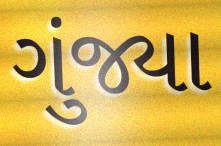
ગુંજ્યા